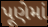
પૂણેમાં